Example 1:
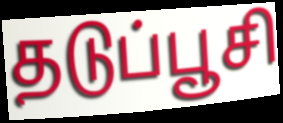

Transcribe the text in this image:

தடுப்பூசி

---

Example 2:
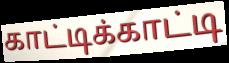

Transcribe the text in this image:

காட்டிக்காட்டி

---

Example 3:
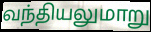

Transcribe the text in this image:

வந்தியலுமாறு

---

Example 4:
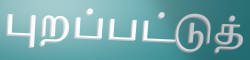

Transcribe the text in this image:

புறப்பட்டுத்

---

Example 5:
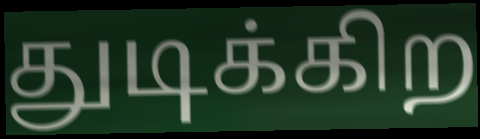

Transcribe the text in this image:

துடிக்கிற